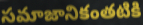
సమాజానికంతటికి